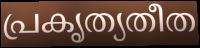
പ്രകൃത്യതീത